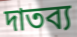
দাতব্য